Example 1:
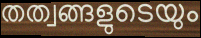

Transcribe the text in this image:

തത്വങ്ങളുടെയും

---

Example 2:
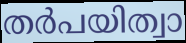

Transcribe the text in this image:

തർപയിത്വാ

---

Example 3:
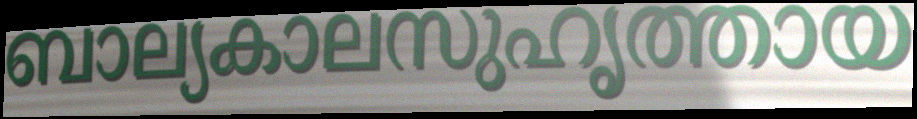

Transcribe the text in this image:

ബാല്യകാലസുഹൃത്തായ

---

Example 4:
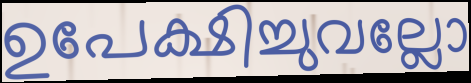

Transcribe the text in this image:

ഉപേക്ഷിച്ചുവല്ലോ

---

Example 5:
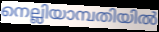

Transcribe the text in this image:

നെല്ലിയാമ്പതിയിൽ